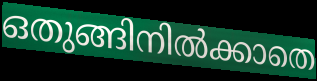
ഒതുങ്ങിനിൽക്കാതെ